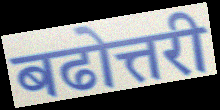
बढोत्तरी